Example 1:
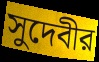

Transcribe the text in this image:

সুদেবীর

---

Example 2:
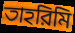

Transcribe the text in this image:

তাহরিমি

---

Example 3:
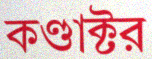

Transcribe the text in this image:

কণ্ডাক্টর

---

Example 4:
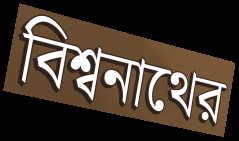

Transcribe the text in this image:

বিশ্বনাথের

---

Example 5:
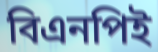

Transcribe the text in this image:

বিএনপিই